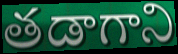
తడాగాని